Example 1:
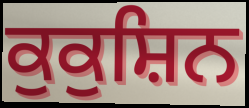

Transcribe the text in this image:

ਕੁਕੁਸ਼ਿਨ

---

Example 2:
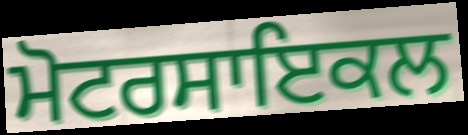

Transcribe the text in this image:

ਮੋਟਰਸਾਇਕਲ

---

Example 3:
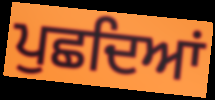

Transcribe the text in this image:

ਪੁਛਦਿਆਂ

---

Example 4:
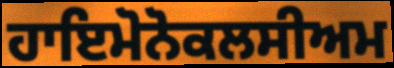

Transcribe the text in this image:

ਹਾਇਮੋਨੋਕਲਸੀਅਮ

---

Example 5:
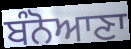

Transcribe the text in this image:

ਬੰਨੋਆਣਾ